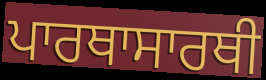
ਪਾਰਥਾਸਾਰਥੀ